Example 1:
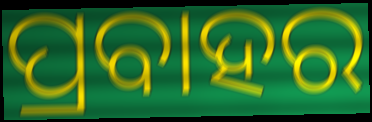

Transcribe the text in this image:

ପ୍ରବାହର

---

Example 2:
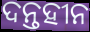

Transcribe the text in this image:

ଦନ୍ତହୀନ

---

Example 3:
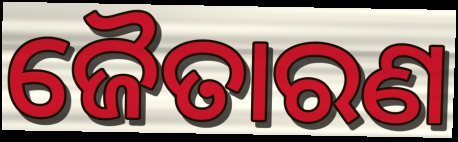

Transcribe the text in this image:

ଜୈତାରଣ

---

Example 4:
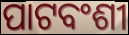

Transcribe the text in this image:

ପାଟବଂଶୀ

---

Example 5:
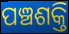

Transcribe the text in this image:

ପଞ୍ଚଶକ୍ତି